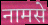
नामसे